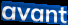
avant